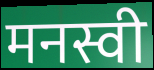
मनस्वी